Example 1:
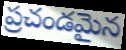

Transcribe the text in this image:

ప్రచండమైన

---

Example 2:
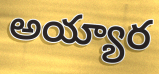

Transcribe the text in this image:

అయ్యార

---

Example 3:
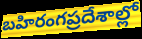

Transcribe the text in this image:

బహిరంగప్రదేశాల్లో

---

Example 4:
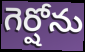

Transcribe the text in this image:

గెర్షోను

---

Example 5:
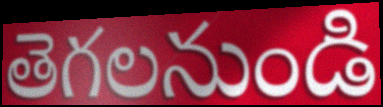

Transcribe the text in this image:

తెగలనుండి